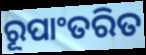
ରୂପାଂତରିତ